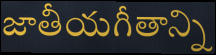
జాతీయగీతాన్ని